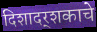
दिशादर्शकाचे